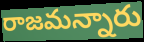
రాజమన్నారు